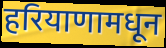
हरियाणामधून